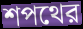
শপথের